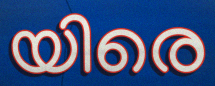
യിരെ